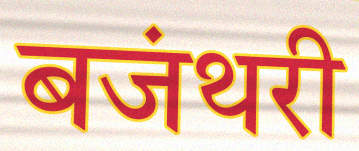
बजंथरी